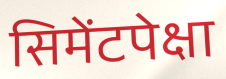
सिमेंटपेक्षा